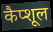
कैप्शूल